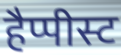
हैप्पीस्ट